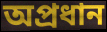
অপ্রধান